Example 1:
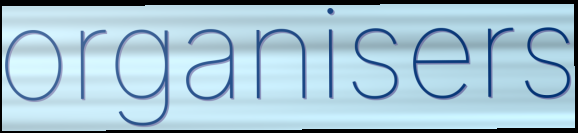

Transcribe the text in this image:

organisers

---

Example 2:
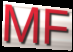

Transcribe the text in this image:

MF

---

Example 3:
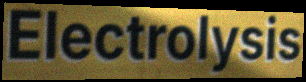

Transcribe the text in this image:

Electrolysis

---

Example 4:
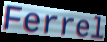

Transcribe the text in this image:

Ferrel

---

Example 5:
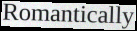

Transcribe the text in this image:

Romantically